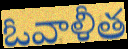
ఓవాళీత